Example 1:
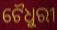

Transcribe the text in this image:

ଚୈଧୁରୀ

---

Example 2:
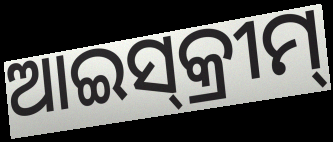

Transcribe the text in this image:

ଆଇସ୍‌କ୍ରୀମ୍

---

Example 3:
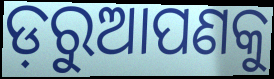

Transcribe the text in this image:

ଡ଼ରୁଆପଣକୁ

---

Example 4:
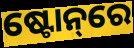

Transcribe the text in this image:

ଷ୍ଟୋନ୍‌ରେ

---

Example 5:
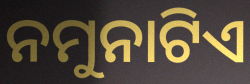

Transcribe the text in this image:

ନମୁନାଟିଏ